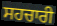
ਸਹਚਾਰੀ